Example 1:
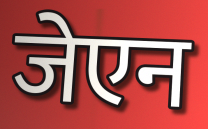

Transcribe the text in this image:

जेएन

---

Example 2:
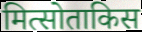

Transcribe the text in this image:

मित्सोताकिस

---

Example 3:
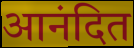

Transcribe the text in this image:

आनंदित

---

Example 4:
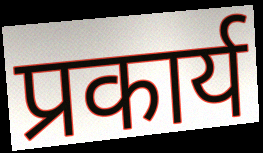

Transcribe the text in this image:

प्रकार्य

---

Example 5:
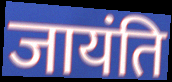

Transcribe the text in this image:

जायंति